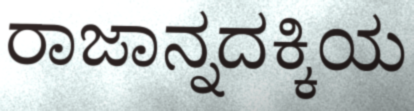
ರಾಜಾನ್ನದಕ್ಕಿಯ